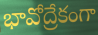
భావోద్రేకంగా